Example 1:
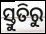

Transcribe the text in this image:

ସ୍ତୁତିରୁ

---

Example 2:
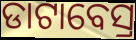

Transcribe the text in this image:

ଡାଟାବେସ୍ର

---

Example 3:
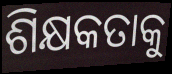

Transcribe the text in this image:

ଶିକ୍ଷକତାକୁ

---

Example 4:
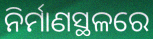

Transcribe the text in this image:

ନିର୍ମାଣସ୍ଥଳରେ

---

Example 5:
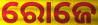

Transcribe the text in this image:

ରୋଜେ